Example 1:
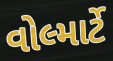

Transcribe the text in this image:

વોલ્માર્ટે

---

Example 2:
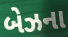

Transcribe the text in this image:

બેઝના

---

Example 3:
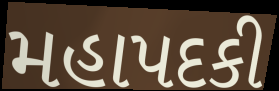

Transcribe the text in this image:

મહાપદકી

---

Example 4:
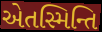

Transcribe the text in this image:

એતસ્મિન્તિ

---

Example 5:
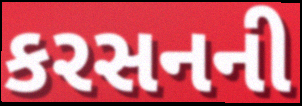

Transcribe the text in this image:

કરસનની